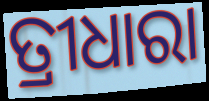
ତ୍ରୀଧାରା